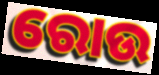
ରୋଉ